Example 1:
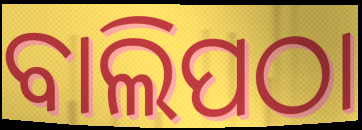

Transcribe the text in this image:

ବାଲିପଠା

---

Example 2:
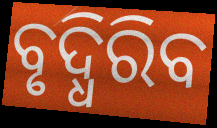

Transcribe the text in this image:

ବୃଦ୍ଧିରିବ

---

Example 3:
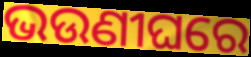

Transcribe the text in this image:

ଭଉଣୀଘରେ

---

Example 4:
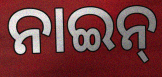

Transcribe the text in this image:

ନାଇନ୍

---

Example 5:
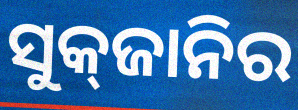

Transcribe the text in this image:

ସୁକ୍‌ଜାନିର